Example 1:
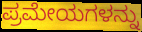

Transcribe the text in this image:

ಪ್ರಮೇಯಗಳನ್ನು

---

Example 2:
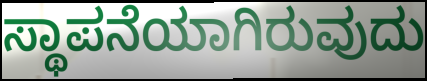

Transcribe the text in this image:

ಸ್ಥಾಪನೆಯಾಗಿರುವುದು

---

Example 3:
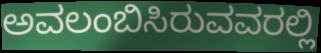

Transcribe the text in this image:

ಅವಲಂಬಿಸಿರುವವರಲ್ಲಿ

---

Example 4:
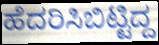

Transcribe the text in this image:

ಹೆದರಿಸಿಬಿಟ್ಟಿದ್ದ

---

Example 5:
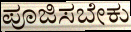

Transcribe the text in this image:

ಪೂಜಿಸಬೇಕು